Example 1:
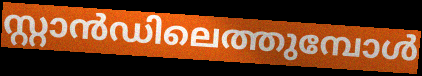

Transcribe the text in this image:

സ്റ്റാൻഡിലെത്തുമ്പോൾ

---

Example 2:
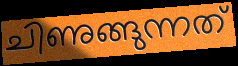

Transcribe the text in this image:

ചിണുങ്ങുന്നത്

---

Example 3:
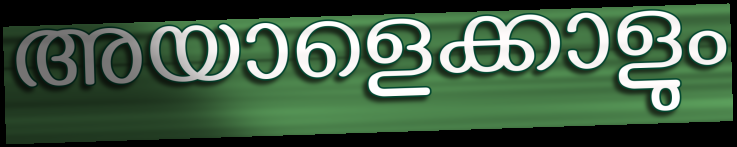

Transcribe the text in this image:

അയാളെക്കാളും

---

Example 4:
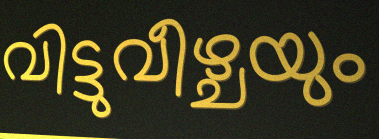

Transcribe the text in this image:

വിട്ടുവീഴ്ചയും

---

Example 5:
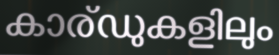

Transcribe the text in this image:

കാര്ഡുകളിലും